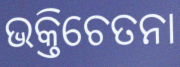
ଭକ୍ତିଚେତନା